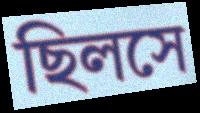
ছিলসে